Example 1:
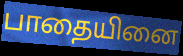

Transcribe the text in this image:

பாதையினை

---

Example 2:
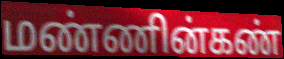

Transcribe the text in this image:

மண்ணின்கண்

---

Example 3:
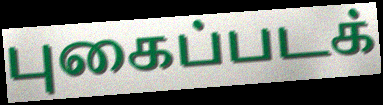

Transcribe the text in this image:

புகைப்படக்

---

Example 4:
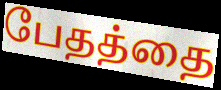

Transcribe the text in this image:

பேதத்தை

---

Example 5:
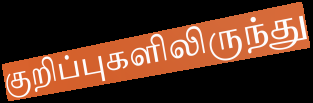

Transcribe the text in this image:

குறிப்புகளிலிருந்து